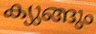
ക്യുങ്ങും